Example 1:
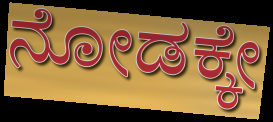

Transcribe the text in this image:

ನೋಡಕ್ಕೇ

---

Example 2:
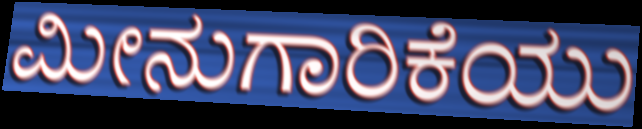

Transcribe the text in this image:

ಮೀನುಗಾರಿಕೆಯು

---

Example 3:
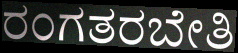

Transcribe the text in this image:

ರಂಗತರಬೇತಿ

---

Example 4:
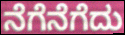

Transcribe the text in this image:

ನೆಗೆನೆಗೆದು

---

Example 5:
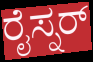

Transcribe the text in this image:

ರೈಸ್ನರ್